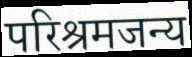
परिश्रमजन्य